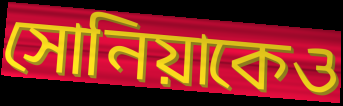
সোনিয়াকেও